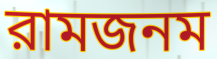
রামজনম